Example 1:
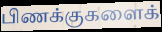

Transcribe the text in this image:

பிணக்குகளைக்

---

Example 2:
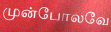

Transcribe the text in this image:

முன்போலவே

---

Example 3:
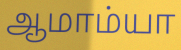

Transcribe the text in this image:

ஆமாம்யா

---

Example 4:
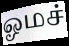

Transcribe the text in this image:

ஓமச்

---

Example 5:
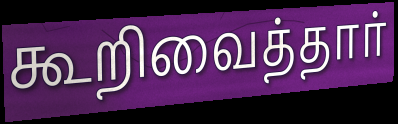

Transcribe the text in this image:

கூறிவைத்தார்